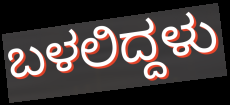
ಬಳಲಿದ್ದಳು